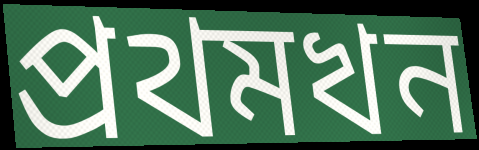
প্ৰথমখন